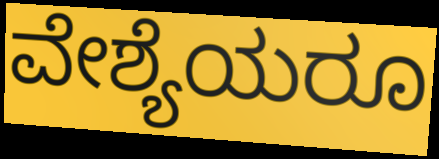
ವೇಶ್ಯೆಯರೂ